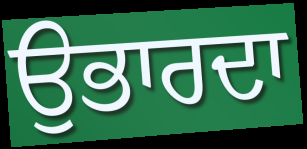
ਉਭਾਰਦਾ